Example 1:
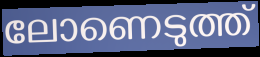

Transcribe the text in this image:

ലോണെടുത്ത്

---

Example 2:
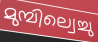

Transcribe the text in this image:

മുമ്പില്വെച്ചു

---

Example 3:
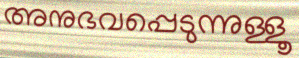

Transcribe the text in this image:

അനുഭവപ്പെടുന്നുള്ളൂ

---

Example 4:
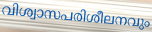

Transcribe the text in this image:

വിശ്വാസപരിശീലനവും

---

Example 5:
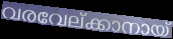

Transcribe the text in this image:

വരവേല്ക്കാനായ്